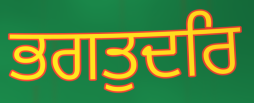
ਭਗਤੁਦਰਿ